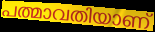
പത്മാവതിയാണ്